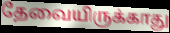
தேவையிருக்காது